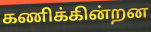
கணிக்கின்றன